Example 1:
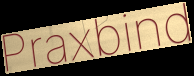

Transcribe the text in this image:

Praxbind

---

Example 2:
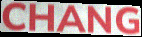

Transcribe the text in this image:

CHANG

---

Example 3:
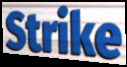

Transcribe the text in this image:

Strike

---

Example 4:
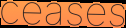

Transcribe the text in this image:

ceases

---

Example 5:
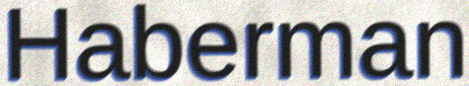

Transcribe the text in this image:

Haberman